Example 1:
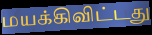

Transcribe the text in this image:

மயக்கிவிட்டது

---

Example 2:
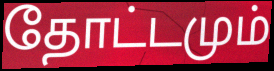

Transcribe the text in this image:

தோட்டமும்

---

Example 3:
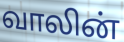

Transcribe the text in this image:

வாலின்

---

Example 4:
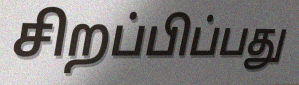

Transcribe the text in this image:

சிறப்பிப்பது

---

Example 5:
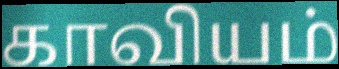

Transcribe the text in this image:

காவியம்